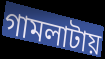
গামলাটায়